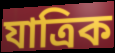
যাত্ৰিক